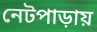
নেটপাড়ায়